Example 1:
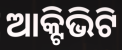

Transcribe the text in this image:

ଆକ୍ଟିଭିଟି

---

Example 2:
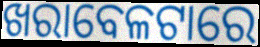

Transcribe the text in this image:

ଖରାବେଳଟାରେ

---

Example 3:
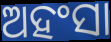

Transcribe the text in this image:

ଅହଂସା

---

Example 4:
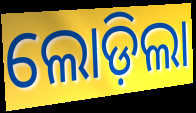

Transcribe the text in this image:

ଲୋଡ଼ିଲା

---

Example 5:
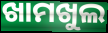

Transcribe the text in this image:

ଖାମଖୁଲ